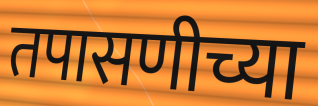
तपासणीच्या